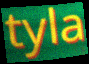
tyla